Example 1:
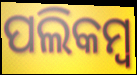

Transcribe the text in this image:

ପଲିକମ୍ବ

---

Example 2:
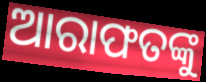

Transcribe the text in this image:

ଆରାଫତଙ୍କୁ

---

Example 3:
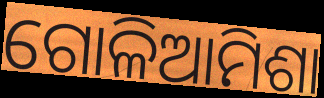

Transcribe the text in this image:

ଗୋଳିଆମିଶା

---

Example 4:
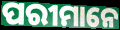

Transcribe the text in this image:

ପରୀମାନେ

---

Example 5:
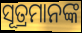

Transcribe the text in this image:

ସୂତ୍ରମାନଙ୍କ